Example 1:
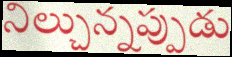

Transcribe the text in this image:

నిల్చున్నప్పుడు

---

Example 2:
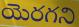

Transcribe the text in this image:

యెరగని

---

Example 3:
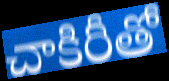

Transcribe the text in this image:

చాకిరీతో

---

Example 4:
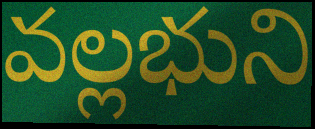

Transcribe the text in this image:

వల్లభుని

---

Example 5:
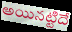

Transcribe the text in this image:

అయినట్టిదే